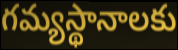
గమ్యస్థానాలకు